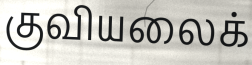
குவியலைக்